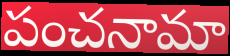
పంచనామా